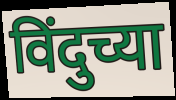
विंदुच्या